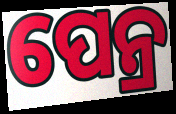
ପେନ୍ର